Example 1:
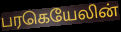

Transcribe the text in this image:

பரகெயேலின்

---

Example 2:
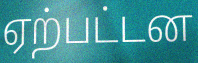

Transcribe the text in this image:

ஏற்பட்டன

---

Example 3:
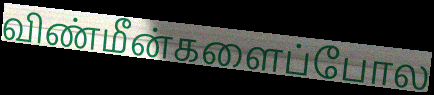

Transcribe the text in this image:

விண்மீன்களைப்போல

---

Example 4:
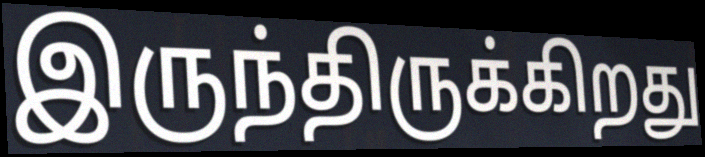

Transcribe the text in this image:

இருந்திருக்கிறது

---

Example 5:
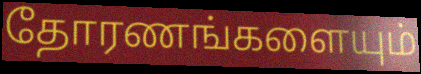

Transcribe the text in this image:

தோரணங்களையும்